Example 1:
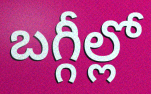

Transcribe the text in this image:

బగ్గీల్లో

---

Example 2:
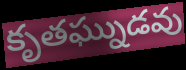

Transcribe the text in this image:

కృతఘ్నుడవు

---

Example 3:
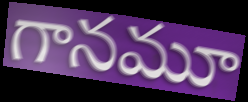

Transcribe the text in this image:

గానమూ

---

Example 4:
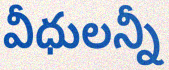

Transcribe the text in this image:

వీధులన్నీ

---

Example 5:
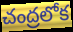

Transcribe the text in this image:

చంద్రలోక